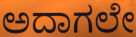
ಅದಾಗಲೇ